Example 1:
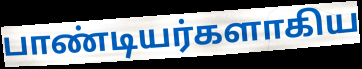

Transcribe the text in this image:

பாண்டியர்களாகிய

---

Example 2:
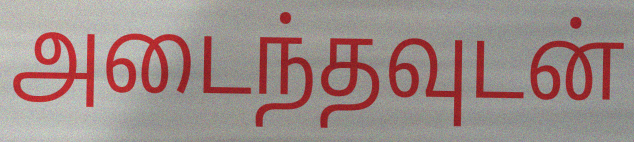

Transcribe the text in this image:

அடைந்தவுடன்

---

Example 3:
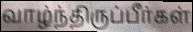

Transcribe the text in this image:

வாழ்ந்திருப்பீர்கள்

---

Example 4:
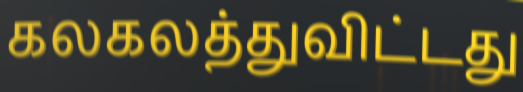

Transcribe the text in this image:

கலகலத்துவிட்டது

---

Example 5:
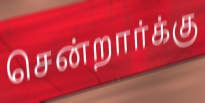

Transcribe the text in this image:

சென்றார்க்கு